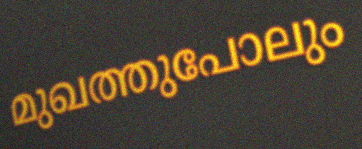
മുഖത്തുപോലും